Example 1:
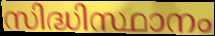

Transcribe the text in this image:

സിദ്ധിസ്ഥാനം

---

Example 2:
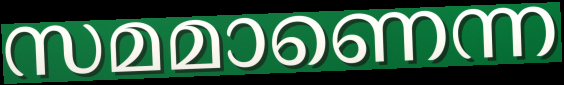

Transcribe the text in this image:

സമമാണെന്ന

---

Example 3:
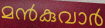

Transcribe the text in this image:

മൻകുവാർ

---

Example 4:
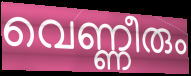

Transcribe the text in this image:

വെണ്ണീരും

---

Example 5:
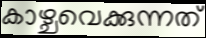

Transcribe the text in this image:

കാഴ്ചവെക്കുന്നത്